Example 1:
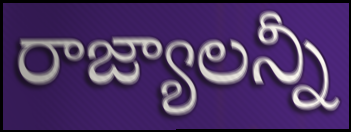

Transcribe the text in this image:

రాజ్యాలన్నీ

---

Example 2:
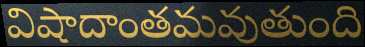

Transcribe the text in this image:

విషాదాంతమవుతుంది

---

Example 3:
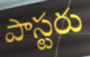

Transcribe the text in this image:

పాస్టరు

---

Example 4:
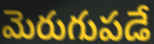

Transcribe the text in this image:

మెరుగుపడే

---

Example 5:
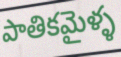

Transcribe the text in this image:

పాతికమైళ్ళ